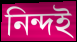
নিন্দই